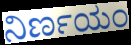
ನಿರ್ಣಯಂ